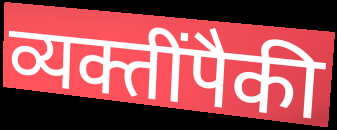
व्यक्‍तींपैकी